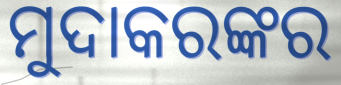
ମୁଦାକରଙ୍କର